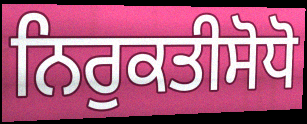
ਨਿਰੁਕਤੀਸੋਧੋ